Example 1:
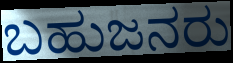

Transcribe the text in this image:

ಬಹುಜನರು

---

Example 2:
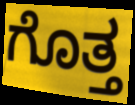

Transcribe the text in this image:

ಗೊತ್ತ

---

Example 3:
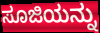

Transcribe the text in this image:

ಸೂಜಿಯನ್ನು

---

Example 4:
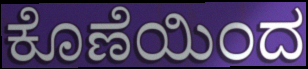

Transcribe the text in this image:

ಕೊಣೆಯಿಂದ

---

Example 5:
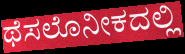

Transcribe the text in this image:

ಥೆಸಲೊನೀಕದಲ್ಲಿ